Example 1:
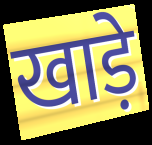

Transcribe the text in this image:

खाड़े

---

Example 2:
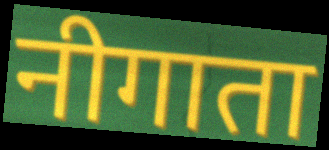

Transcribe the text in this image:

नीगाता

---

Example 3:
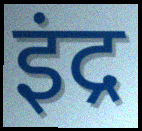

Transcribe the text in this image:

इंद्र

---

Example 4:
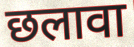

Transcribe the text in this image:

छलावा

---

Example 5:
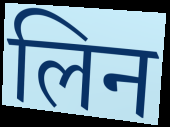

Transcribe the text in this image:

लिन